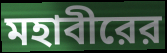
মহাবীরের